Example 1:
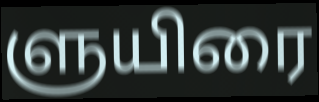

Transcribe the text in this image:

ளுயிரை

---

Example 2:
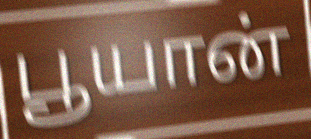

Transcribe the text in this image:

பூயான்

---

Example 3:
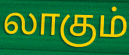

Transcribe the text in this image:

லாகும்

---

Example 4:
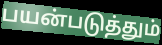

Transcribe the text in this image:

பயன்படுத்தும்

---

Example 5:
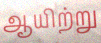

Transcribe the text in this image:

ஆயிற்று